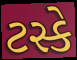
ટસ્કે